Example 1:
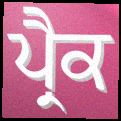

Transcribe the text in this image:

ਪ੍ਰੈਕ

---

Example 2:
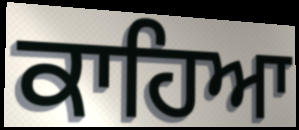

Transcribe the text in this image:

ਕਾਹਿਆ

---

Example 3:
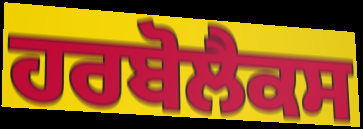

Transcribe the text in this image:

ਹਰਬੋਲੈਕਸ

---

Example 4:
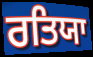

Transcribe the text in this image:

ਰਤਿਯਾ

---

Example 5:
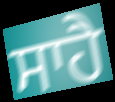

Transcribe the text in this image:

ਸਾਹੈ